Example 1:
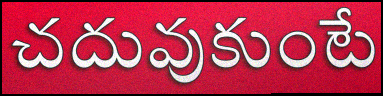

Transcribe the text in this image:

చదువుకుంటే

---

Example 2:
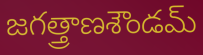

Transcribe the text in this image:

జగత్త్రాణశౌండమ్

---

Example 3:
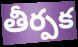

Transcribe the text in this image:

తీర్పక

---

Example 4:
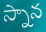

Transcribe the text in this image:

స్నాన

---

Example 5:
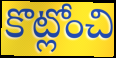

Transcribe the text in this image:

కొట్లోంచి